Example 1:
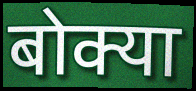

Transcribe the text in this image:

बोक्या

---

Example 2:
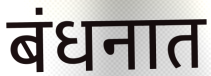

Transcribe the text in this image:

बंधनात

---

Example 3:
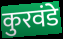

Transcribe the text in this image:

कुरवंडे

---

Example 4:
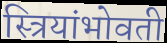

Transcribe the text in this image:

स्त्रियांभोवती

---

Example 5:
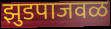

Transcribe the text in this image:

झुडपाजवळ